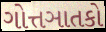
ગોત્તઞાતકો